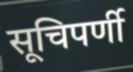
सूचिपर्णी